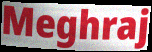
Meghraj